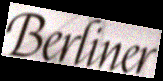
Berliner